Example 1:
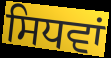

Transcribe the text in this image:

ਸਿਧਵਾਂ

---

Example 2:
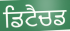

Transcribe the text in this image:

ਡਿਟੈਚਡ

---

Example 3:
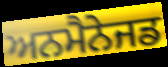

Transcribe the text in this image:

ਅਨਮੈਨੇਜਡ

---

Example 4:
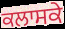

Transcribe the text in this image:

ਕਲਾਸਕੇ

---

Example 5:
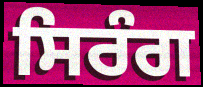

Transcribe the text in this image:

ਸਿਰੰਗ